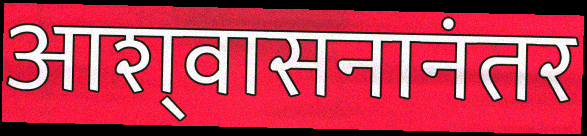
आश्वासनानंतर